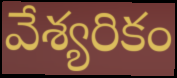
వేశ్యరికం